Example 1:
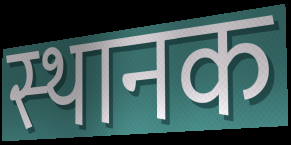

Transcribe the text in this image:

स्थानक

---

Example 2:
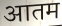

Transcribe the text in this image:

आतम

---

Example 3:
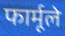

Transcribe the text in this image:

फार्मूले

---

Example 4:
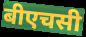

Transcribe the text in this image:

बीएचसी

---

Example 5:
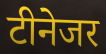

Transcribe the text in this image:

टीनेजर